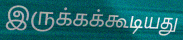
இருக்கக்கூடியது